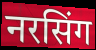
नरसिंग